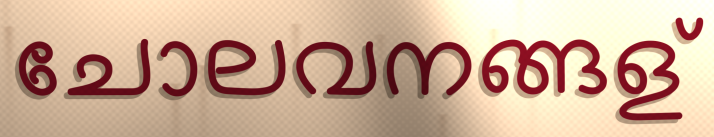
ചോലവനങ്ങള്